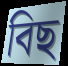
বিছ